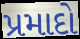
પ્રમાદો